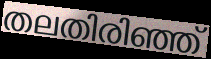
തലതിരിഞ്ഞ്